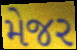
મેજર